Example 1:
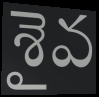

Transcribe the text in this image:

శైవ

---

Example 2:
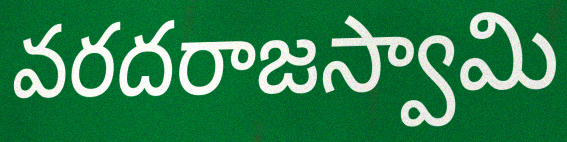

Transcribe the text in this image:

వరదరాజస్వామి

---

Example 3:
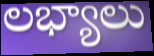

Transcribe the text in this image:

లభ్యాలు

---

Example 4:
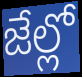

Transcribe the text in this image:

జేల్లో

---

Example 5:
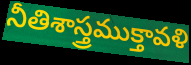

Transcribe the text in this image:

నీతిశాస్త్రముక్తావళి